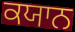
ਕਯਾਨ